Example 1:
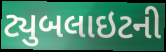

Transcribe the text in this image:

ટ્યુબલાઇટની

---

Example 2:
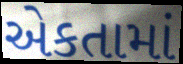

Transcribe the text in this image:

એકતામાં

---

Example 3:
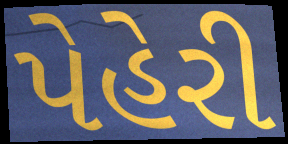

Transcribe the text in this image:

પેહેરી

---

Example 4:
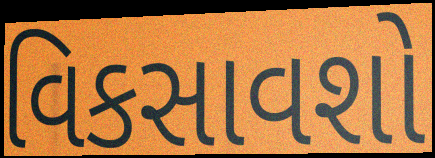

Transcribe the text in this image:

વિકસાવશો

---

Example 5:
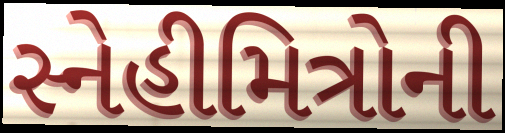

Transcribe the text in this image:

સ્નેહીમિત્રોની